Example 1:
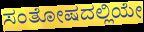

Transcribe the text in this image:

ಸಂತೋಷದಲ್ಲಿಯೇ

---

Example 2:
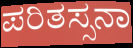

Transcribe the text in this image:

ಪರಿತಸ್ಸನಾ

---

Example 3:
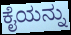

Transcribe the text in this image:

ಕೈಯನ್ನು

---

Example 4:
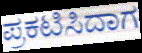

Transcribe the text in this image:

ಪ್ರಕಟಿಸಿದಾಗ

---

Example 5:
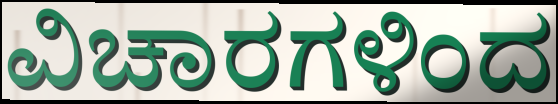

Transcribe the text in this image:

ವಿಚಾರಗಳಿಂದ